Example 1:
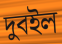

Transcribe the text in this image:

দুবইল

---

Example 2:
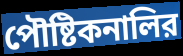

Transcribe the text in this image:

পৌষ্টিকনালির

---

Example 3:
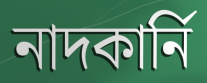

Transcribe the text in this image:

নাদকার্নি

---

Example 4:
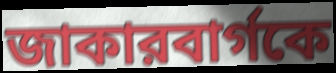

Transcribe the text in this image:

জাকারবার্গকে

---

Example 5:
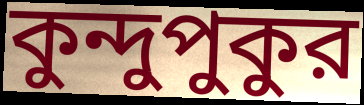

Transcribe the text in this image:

কুন্দুপুকুর